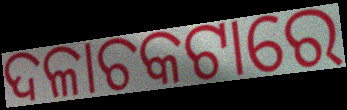
ଦଳାଚକଟାରେ